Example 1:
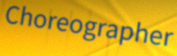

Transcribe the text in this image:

Choreographer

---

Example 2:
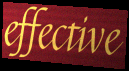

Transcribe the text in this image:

effective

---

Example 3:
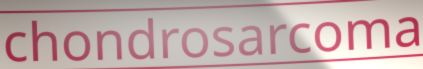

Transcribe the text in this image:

chondrosarcoma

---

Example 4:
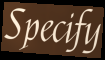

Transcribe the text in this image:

Specify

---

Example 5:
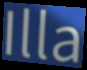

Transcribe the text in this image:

Illa